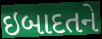
ઇબાદતને